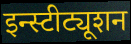
इन्स्टीट्यूशन